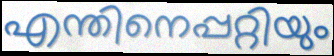
എന്തിനെപ്പറ്റിയും